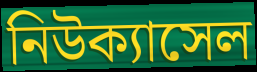
নিউক্যাসেল